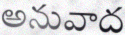
అనువాద